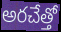
అరచేత్తో